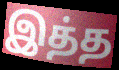
இத்த